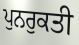
ਪੁਨਰੁਕਤੀ